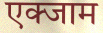
एक्जाम